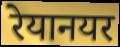
रेयानयर